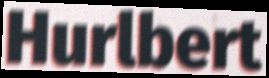
Hurlbert